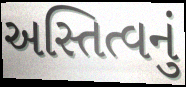
અસ્તિત્વનું